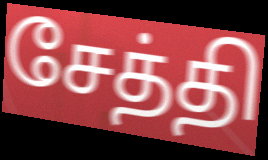
சேத்தி